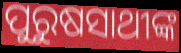
ପୁରୁଷସାଥୀଙ୍କ